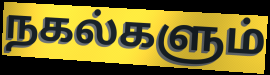
நகல்களும்